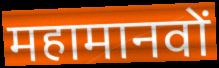
महामानवों